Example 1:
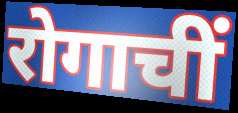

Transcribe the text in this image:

रोगाचीं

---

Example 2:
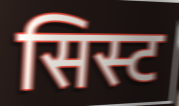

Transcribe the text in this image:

सिस्ट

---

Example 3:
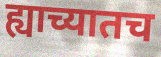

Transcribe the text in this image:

ह्याच्यातच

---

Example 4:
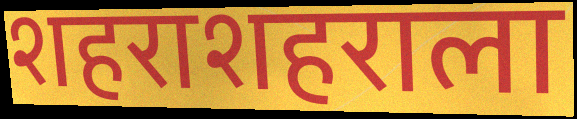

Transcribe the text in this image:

शहराशहराला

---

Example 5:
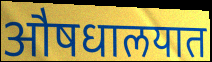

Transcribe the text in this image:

औषधालयात